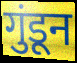
गुंडून